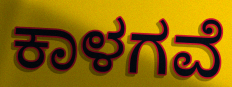
ಕಾಳಗವೆ